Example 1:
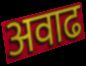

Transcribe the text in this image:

अवाढ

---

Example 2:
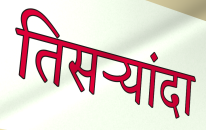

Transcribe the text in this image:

तिसऱ्यांदा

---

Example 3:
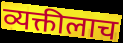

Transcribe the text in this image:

व्यक्तीलाच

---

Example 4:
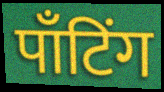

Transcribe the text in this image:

पाँटिंग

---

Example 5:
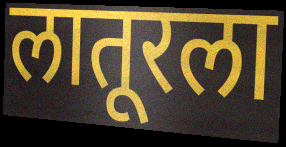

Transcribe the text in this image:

लातूरला